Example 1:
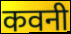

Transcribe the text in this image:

कवनी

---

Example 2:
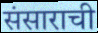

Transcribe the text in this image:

संसाराची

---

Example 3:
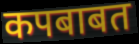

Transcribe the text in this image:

कपबाबत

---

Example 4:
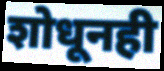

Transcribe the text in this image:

शोधूनही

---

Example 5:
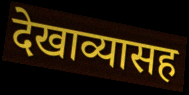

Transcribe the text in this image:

देखाव्यासह